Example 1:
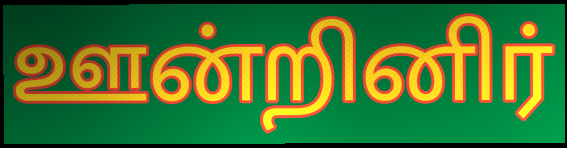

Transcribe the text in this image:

ஊன்றினிர்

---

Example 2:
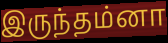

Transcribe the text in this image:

இருந்தம்னா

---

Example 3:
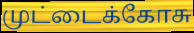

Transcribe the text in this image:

முட்டைக்கோசு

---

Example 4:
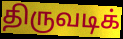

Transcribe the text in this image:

திருவடிக்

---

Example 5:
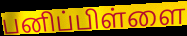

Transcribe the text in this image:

பனிப்பிள்ளை